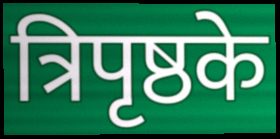
त्रिपृष्ठके